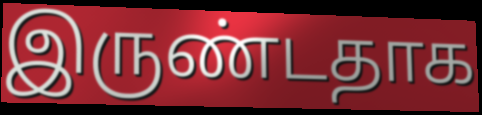
இருண்டதாக